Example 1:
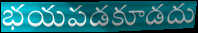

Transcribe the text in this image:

భయపడకూడదు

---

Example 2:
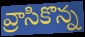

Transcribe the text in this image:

వ్రాసికొన్న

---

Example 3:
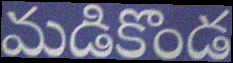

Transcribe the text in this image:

మడికొండ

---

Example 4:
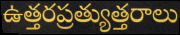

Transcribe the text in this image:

ఉత్తరప్రత్యుత్తరాలు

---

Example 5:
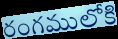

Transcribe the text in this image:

రంగములోకి